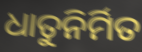
ଧାତୁନିର୍ମିତ